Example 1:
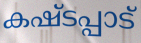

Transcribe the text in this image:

കഷ്ടപ്പാട്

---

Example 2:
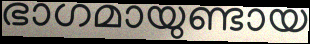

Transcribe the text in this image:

ഭാഗമായുണ്ടായ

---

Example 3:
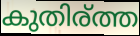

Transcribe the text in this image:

കുതിര്ത്ത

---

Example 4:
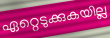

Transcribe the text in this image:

ഏറ്റെടുക്കുകയില്ല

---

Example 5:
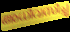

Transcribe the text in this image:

അധിവസിച്ചു